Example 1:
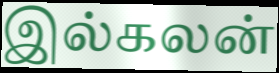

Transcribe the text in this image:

இல்கலன்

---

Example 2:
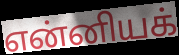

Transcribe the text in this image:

என்னியக்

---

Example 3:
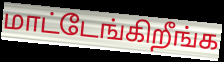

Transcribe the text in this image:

மாட்டேங்கிறீங்க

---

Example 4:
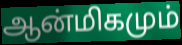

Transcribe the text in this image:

ஆன்மிகமும்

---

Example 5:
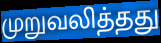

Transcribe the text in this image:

முறுவலித்தது